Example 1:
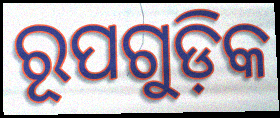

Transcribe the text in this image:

ରୂପଗୁଡ଼ିକ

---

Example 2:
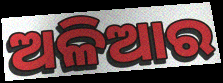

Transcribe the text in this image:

ଅଳିଆର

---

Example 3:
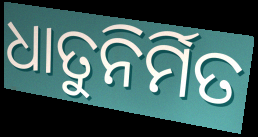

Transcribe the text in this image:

ଧାତୁନିର୍ମିତ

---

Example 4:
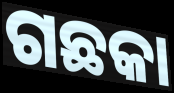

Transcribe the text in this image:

ଗଛକା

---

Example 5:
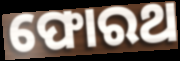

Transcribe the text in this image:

ଫୋରଥ